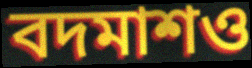
বদমাশও